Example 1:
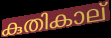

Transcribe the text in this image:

കുതികാല്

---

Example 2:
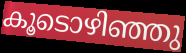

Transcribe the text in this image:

കൂടൊഴിഞ്ഞു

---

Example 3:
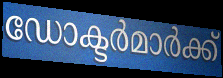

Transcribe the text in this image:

ഡോക്ടർമാർക്ക്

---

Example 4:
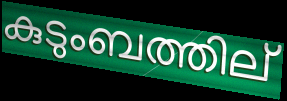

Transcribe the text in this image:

കുടുംബത്തില്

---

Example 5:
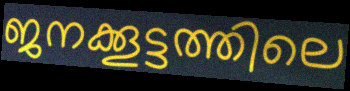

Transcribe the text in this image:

ജനക്കൂട്ടത്തിലെ